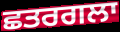
ਛਤਰਗਲਾ